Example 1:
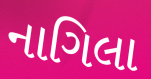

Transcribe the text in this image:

નાગિલા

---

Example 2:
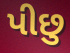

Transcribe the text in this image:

પીછુ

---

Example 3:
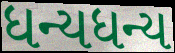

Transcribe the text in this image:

ધન્યધન્ય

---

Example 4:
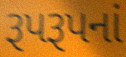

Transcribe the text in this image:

રૂપરૂપનાં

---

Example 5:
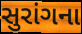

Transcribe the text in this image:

સુરાંગના